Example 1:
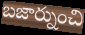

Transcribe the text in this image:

బజార్నుంచి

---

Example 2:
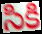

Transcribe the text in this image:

సికి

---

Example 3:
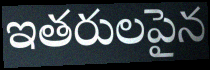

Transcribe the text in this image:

ఇతరులపైన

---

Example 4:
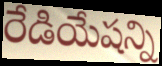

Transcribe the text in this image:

రేడియేషన్ని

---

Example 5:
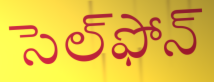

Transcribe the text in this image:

సెల్‌ఫోన్